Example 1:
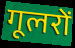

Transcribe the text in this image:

गूलरों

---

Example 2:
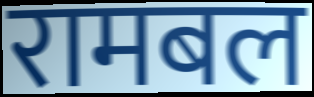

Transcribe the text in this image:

रामबल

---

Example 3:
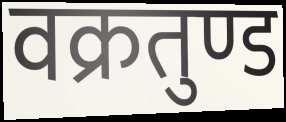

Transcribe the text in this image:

वक्रतुण्ड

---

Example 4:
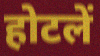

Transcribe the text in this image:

होटलें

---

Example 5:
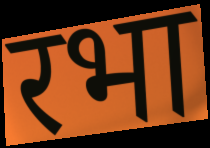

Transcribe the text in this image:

रभा